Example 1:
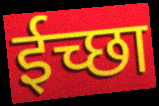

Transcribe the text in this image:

ईच्छा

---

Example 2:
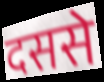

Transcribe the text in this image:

दससे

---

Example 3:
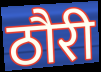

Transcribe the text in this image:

ठौरी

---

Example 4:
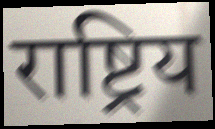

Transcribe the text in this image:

राष्ट्रिय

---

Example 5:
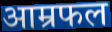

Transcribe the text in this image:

आम्रफल